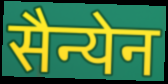
सैन्येन